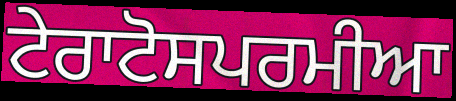
ਟੇਰਾਟੋਸਪਰਮੀਆ